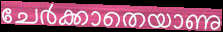
ചേർക്കാതെയാണു